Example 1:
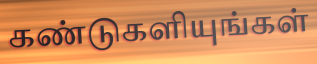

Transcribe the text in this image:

கண்டுகளியுங்கள்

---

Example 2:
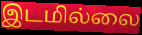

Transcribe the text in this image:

இடமில்லை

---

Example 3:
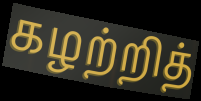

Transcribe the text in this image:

கழற்றித்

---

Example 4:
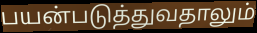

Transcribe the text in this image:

பயன்படுத்துவதாலும்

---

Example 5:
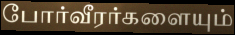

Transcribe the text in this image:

போர்வீரர்களையும்